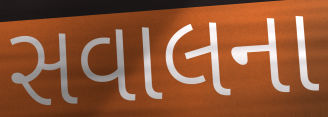
સવાલના